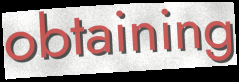
obtaining